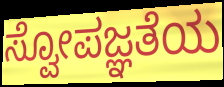
ಸ್ವೋಪಜ್ಞತೆಯ